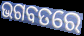
ଭଗବତରେ